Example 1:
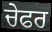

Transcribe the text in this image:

ਚੇਫਰ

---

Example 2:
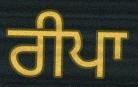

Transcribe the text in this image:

ਰੀਪਾ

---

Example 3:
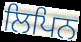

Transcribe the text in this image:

ਲਿਪਿਨ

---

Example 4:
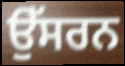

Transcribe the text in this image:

ਉੱਸਰਨ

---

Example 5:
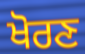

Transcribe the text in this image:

ਖੋਰਣ